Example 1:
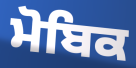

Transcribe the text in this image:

ਮੋਬਿਕ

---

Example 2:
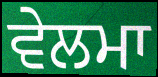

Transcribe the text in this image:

ਵੇਲਮਾ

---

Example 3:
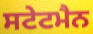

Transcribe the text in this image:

ਸਟੇਟਮੈਨ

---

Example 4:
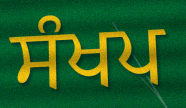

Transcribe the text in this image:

ਸੰਖਪ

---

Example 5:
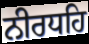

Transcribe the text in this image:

ਨੀਰਧਹਿ